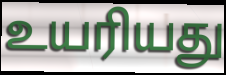
உயரியது